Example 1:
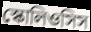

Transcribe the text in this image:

স্কোলিওসিস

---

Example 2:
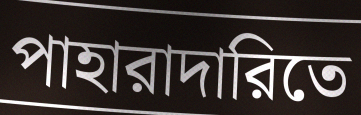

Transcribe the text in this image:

পাহারাদারিতে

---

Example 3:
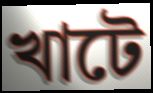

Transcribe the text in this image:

খাটে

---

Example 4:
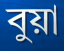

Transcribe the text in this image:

বুয়া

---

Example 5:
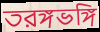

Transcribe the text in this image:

তরঙ্গভঙ্গি